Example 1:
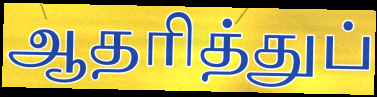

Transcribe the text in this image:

ஆதரித்துப்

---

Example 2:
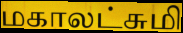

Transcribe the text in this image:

மகாலட்சுமி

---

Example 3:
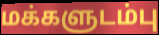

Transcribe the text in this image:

மக்களுடம்பு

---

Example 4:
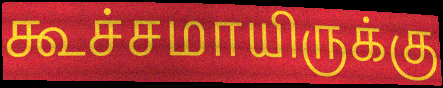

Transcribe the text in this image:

கூச்சமாயிருக்கு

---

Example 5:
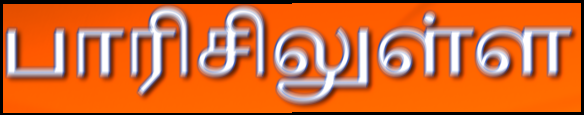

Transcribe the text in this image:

பாரிசிலுள்ள